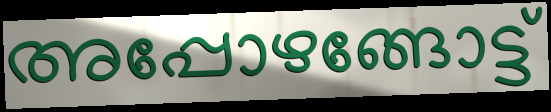
അപ്പോഴങ്ങോട്ട്